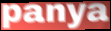
panya